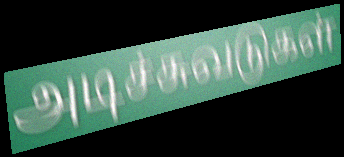
அடிச்சுவடுகள்